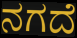
ನಗದೆ